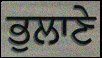
ਭੁਲਾਣੇ